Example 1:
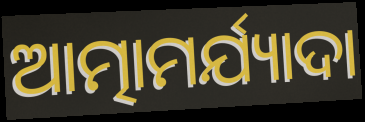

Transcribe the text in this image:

ଆତ୍ମାମର୍ଯ୍ୟାଦା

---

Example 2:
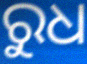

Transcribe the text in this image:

ରୁଧ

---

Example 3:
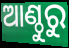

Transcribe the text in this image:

ଆଣ୍ଠୁରୁ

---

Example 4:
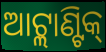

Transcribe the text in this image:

ଆଟ୍ଲାଣ୍ଟିକ୍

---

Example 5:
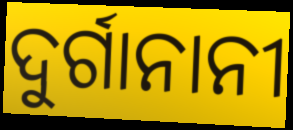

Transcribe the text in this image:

ଦୁର୍ଗାନାନୀ